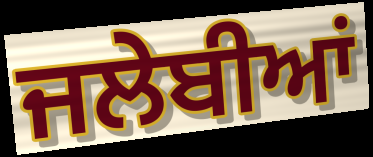
ਜਲੇਬੀਆਂ